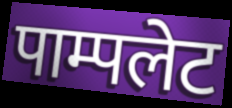
पाम्पलेट